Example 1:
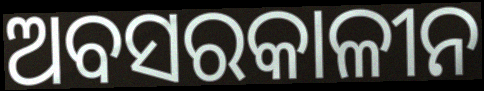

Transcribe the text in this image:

ଅବସରକାଳୀନ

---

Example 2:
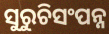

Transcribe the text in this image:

ସୁରୁଚିସଂପନ୍ନ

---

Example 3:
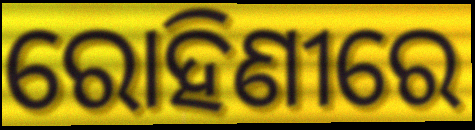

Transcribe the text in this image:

ରୋହିଣୀରେ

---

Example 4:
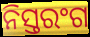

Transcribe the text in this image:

ନିସ୍ତରଂଗ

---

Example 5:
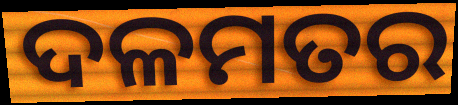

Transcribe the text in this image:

ଦଳମତର